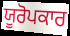
ਯੂਰੋਪਕਾਰ